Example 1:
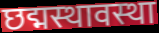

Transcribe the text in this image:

छद्मस्थावस्था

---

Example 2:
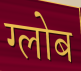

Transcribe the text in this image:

ग्लोब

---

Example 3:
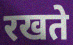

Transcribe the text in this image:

रखते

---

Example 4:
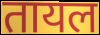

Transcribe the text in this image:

तायल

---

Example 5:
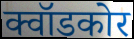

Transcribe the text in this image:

क्वॉडकोर